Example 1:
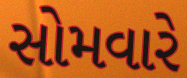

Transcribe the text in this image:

સોમવારે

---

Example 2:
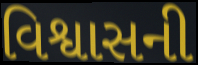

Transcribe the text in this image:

વિશ્વાસની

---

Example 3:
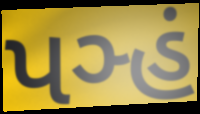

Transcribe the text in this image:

પઞ્હં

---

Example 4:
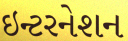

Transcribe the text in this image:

ઇન્ટરનેશન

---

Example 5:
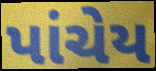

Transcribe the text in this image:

પાંચેય